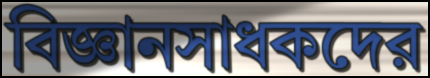
বিজ্ঞানসাধকদের